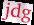
jdg